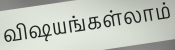
விஷயங்கள்லாம்